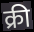
क्री